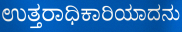
ಉತ್ತರಾಧಿಕಾರಿಯಾದನು